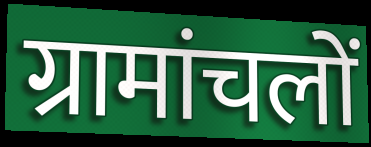
ग्रामांचलों